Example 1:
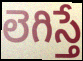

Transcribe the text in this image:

లెగిస్తే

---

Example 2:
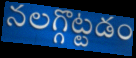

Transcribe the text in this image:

నలగ్గొట్టడం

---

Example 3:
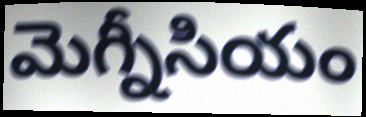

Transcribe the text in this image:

మెగ్నీసియం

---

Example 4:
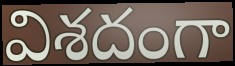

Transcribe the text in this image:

విశదంగా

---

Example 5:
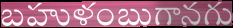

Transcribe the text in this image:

బహుళంబుగానగు